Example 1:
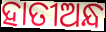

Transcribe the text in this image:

ହାତୀଅନ୍ଧ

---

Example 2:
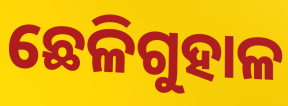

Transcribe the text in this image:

ଛେଳିଗୁହାଳ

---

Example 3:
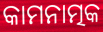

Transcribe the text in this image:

କାମନାତ୍ମକ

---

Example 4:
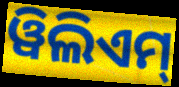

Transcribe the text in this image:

ୱିଲିଏମ୍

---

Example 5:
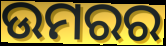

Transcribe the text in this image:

ଉମରର